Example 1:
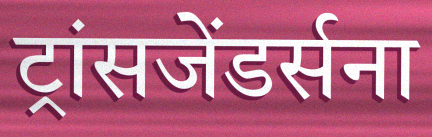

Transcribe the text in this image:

ट्रांसजेंडर्सना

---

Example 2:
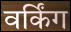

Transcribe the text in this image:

वर्किंग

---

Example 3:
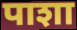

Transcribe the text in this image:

पाशा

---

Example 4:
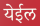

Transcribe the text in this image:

येईल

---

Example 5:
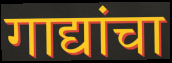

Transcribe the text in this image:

गाद्यांचा